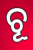
ଚୂ